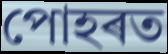
পোহৰত